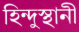
হিন্দুস্থানী